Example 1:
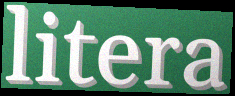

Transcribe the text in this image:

litera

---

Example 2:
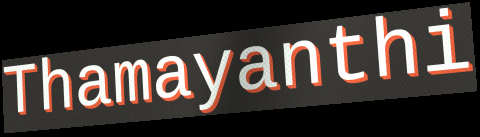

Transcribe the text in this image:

Thamayanthi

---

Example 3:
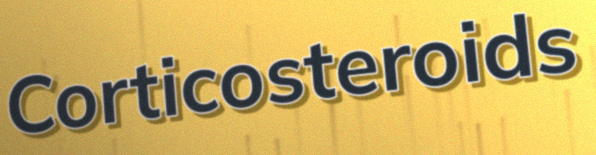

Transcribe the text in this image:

Corticosteroids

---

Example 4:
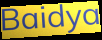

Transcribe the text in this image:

Baidya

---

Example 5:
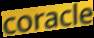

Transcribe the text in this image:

coracle